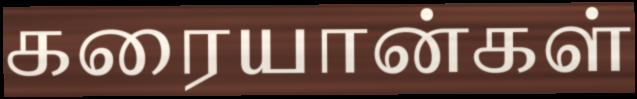
கரையான்கள்